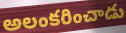
అలంకరించాడు